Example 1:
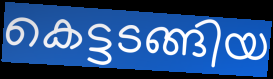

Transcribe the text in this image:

കെട്ടടങ്ങിയ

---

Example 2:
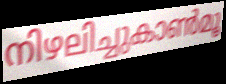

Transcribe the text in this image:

നിഴലിച്ചുകാൺമൂ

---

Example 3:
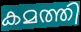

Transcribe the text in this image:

കമത്തി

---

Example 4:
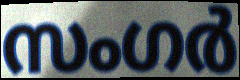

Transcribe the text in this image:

സംഗർ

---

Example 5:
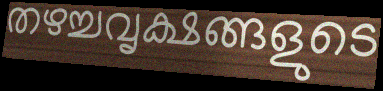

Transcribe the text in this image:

തഴച്ചവൃക്ഷങ്ങളുടെ